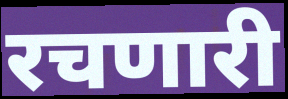
रचणारी